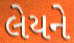
લેયને